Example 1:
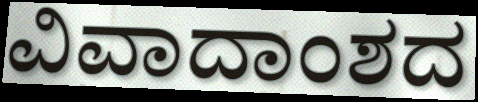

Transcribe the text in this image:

ವಿವಾದಾಂಶದ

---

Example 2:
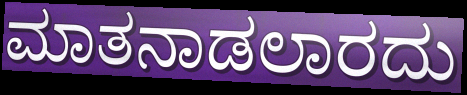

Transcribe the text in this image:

ಮಾತನಾಡಲಾರದು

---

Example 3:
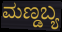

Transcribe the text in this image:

ಮಣ್ಡಬ್ಯ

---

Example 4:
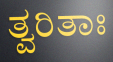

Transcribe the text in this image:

ತ್ವರಿತಾಃ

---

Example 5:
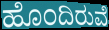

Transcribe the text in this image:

ಹೊಂದಿರುವೆ